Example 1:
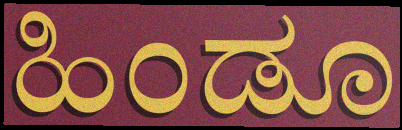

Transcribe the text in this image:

ಹಿಂಡೂ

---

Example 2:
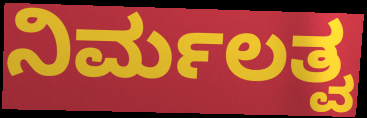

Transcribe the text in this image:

ನಿರ್ಮಲತ್ವ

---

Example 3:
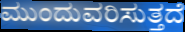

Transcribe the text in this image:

ಮುಂದುವರಿಸುತ್ತದೆ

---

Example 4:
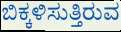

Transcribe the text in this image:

ಬಿಕ್ಕಳಿಸುತ್ತಿರುವ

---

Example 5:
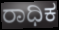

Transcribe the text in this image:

ರಾಧಿಕ